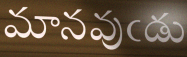
మానవుఁడు